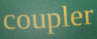
coupler